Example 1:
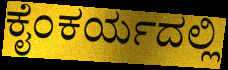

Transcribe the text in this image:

ಕೈಂಕರ್ಯದಲ್ಲಿ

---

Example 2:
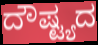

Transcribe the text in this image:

ದೌಷ್ಟ್ಯದ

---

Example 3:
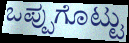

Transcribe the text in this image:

ಒಪ್ಪುಗೊಟ್ಟು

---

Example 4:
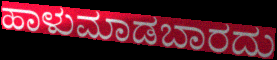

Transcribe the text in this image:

ಹಾಳುಮಾಡಬಾರದು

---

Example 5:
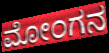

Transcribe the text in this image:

ಮೋಂಗನ